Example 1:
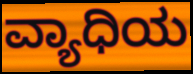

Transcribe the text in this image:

ವ್ಯಾಧಿಯ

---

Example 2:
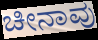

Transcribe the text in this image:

ಚೀನಾವು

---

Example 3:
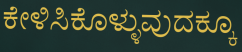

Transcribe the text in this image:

ಕೇಳಿಸಿಕೊಳ್ಳುವುದಕ್ಕೂ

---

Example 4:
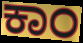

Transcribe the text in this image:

ಕಾಂ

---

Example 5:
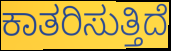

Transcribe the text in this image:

ಕಾತರಿಸುತ್ತಿದೆ